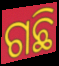
ଗଛି